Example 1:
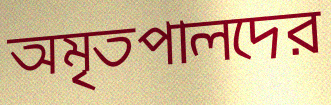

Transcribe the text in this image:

অমৃতপালদের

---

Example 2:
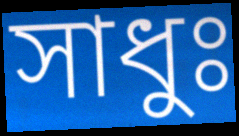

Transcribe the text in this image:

সাধুঃ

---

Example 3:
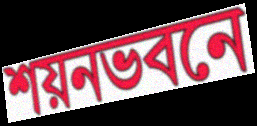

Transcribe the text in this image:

শয়নভবনে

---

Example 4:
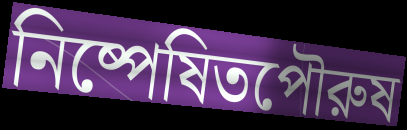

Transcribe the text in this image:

নিষ্পেষিতপৌরুষ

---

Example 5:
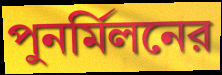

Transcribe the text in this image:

পুনর্মিলনের